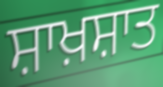
ਸ਼ਾਖ਼ਸ਼ਾਤ